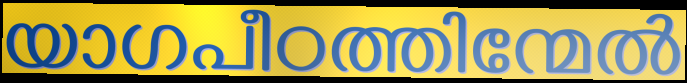
യാഗപീഠത്തിന്മേൽ